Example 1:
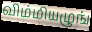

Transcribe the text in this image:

விம்மியழுங்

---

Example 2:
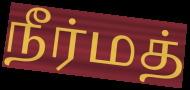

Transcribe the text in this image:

நீர்மத்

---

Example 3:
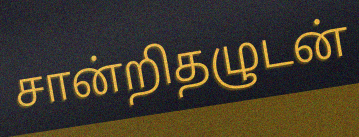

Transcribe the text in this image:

சான்றிதழுடன்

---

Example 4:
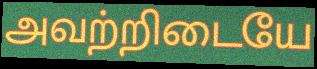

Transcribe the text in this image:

அவற்றிடையே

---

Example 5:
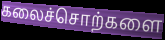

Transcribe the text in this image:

கலைச்சொற்களை